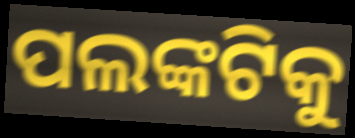
ପଲଙ୍କଟିକୁ